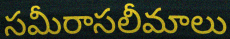
సమీరాసలీమాలు